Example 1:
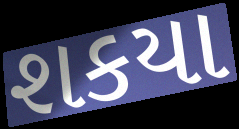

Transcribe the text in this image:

શકયા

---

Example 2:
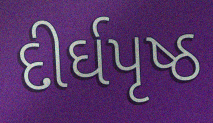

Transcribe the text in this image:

દીર્ઘપૃષ્ઠ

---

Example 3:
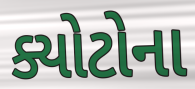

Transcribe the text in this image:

ક્યોટોના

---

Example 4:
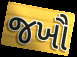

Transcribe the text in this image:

જખૌ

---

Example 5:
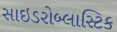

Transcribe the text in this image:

સાઇડરોબ્લાસ્ટિક